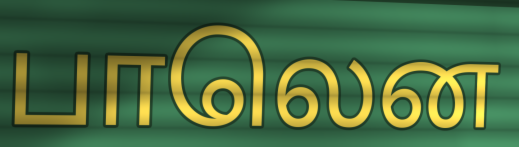
பாலென